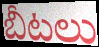
బీటలు